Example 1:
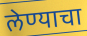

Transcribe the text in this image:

लेण्याचा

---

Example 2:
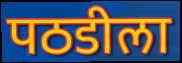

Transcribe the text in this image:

पठडीला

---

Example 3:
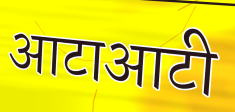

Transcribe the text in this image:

आटाआटी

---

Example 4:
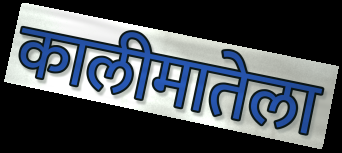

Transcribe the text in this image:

कालीमातेला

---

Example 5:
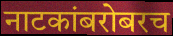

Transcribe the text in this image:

नाटकांबरोबरच